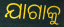
ଯାଗାକୁ